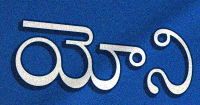
యోని